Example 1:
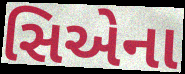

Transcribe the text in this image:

સિએના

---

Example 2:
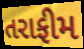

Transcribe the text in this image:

તરાફીમ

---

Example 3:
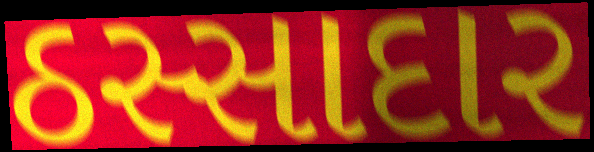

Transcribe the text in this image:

ઠસ્સાદાર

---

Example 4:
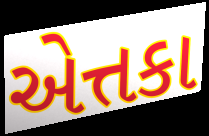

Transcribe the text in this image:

એત્તકા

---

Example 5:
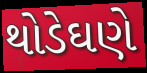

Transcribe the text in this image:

થોડેઘણે